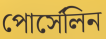
পোর্সেলিন